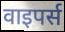
वाइपर्स